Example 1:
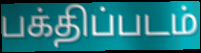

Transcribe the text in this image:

பக்திப்படம்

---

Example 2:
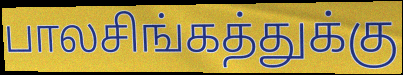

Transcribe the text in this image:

பாலசிங்கத்துக்கு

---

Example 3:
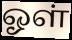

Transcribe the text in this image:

ஓள்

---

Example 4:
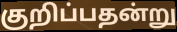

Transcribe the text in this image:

குறிப்பதன்று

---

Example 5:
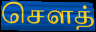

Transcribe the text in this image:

சௌத்